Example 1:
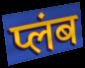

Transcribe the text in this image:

प्लंब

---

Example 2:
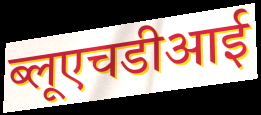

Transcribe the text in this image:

ब्लूएचडीआई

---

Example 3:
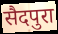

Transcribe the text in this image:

सैदपुरा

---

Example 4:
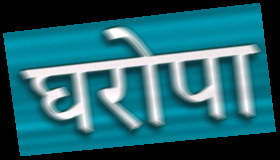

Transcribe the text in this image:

घरोपा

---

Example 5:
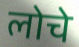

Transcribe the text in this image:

लोचे